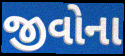
જીવોના